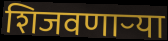
शिजवणाऱ्या